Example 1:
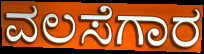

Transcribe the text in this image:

ವಲಸೆಗಾರ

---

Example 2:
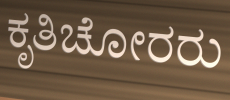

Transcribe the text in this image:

ಕೃತಿಚೋರರು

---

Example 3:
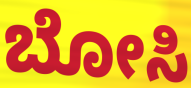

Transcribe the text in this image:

ಬೋಸಿ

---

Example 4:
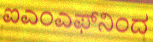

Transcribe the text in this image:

ಐಎಂಎಫ್‌ನಿಂದ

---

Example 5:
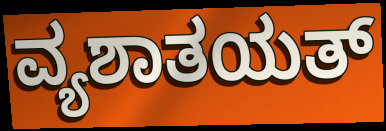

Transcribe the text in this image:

ವ್ಯಶಾತಯತ್